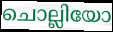
ചൊല്ലിയോ